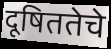
दूषिततेचे